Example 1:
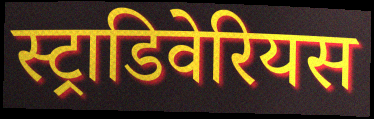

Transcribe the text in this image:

स्ट्राडिवेरियस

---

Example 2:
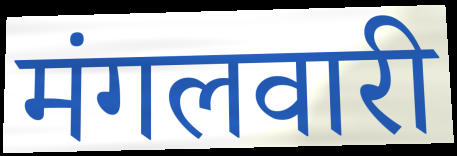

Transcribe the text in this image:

मंगलवारी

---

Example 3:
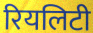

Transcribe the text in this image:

रियलिटी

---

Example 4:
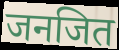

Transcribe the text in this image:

जनजित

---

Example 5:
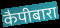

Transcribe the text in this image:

कैपीबारा